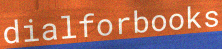
dialforbooks